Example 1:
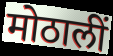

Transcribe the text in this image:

मोठालीं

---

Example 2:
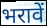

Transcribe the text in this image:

भरावें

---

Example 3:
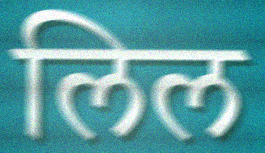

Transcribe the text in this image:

लिल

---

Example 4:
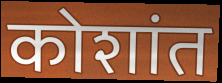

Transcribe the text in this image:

कोशांत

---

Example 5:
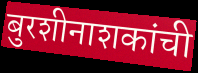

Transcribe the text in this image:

बुरशीनाशकांची